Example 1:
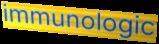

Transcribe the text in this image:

immunologic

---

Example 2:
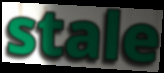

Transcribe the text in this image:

stale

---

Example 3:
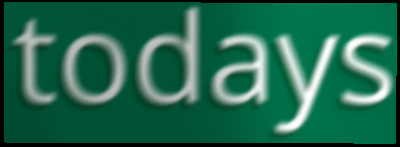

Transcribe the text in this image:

todays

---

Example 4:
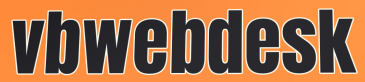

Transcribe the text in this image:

vbwebdesk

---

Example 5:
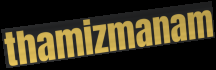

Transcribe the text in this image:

thamizmanam